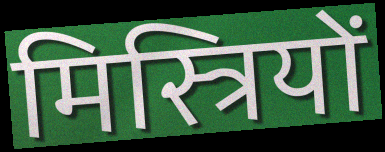
मिस्त्रियों